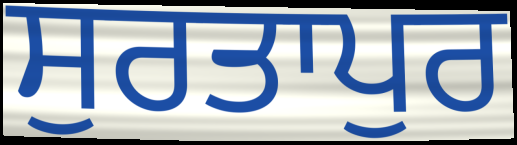
ਸੁਰਤਾਪੁਰ